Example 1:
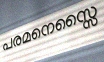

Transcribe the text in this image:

പരമനെസ്സൈ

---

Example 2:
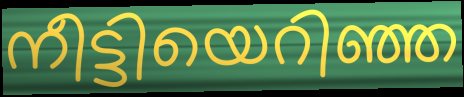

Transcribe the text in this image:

നീട്ടിയെറിഞ്ഞ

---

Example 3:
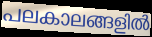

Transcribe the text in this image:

പലകാലങ്ങളിൽ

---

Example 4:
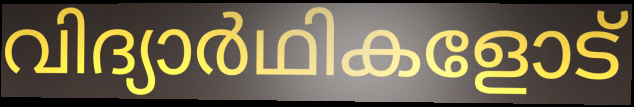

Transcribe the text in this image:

വിദ്യാർഥികളോട്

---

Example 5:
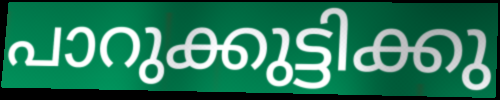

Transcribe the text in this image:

പാറുക്കുട്ടിക്കു